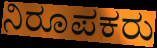
ನಿರೂಪಕರು